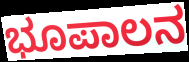
ಭೂಪಾಲನ